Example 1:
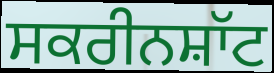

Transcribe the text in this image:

ਸਕਰੀਨਸ਼ਾੱਟ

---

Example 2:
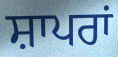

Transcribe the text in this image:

ਸ਼ਾਪਰਾਂ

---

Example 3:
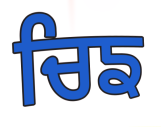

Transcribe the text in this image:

ਚਿਙ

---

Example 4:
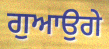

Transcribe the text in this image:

ਗੁਆਉਗੇ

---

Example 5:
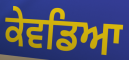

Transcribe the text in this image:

ਕੇਵਡਿਆ